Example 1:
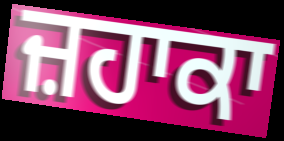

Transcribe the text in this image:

ਜ਼ਹਾਕਾ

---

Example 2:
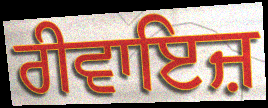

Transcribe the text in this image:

ਰੀਵਾਇਜ਼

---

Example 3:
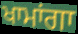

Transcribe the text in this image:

ਖਾਮਾਂਗਾ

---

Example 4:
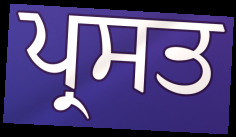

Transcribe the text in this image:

ਪ੍ਰਸਤ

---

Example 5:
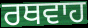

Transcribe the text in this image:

ਰਥਵਾਹ